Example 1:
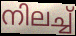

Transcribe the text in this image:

നിലച്ച്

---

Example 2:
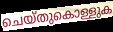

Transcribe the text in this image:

ചെയ്തുകൊള്ളുക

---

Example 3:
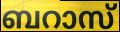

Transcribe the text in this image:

ബറാസ്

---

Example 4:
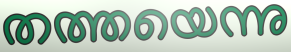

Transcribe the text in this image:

തത്തയെന്നു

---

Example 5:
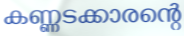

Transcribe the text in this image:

കണ്ണടക്കാരന്റെ